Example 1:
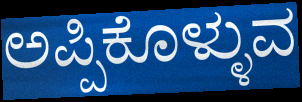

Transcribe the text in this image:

ಅಪ್ಪಿಕೊಳ್ಳುವ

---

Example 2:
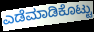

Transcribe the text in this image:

ಎಡೆಮಾಡಿಕೊಟ್ಟು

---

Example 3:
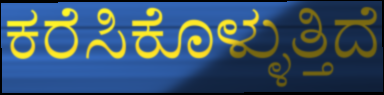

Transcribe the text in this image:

ಕರೆಸಿಕೊಳ್ಳುತ್ತಿದೆ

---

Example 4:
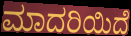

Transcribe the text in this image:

ಮಾದರಿಯಿದೆ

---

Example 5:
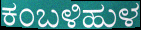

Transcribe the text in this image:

ಕಂಬಳಿಹುಳ